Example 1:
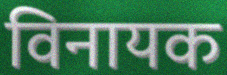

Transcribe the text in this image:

विनायक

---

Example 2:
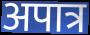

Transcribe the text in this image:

अपात्र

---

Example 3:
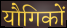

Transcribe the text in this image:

यौगिकों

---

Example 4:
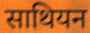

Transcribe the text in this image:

साथियन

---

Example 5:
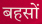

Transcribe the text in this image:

बहसों